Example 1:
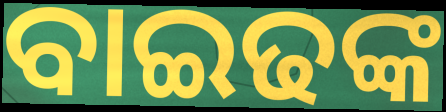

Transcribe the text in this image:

ବାଇଢଙ୍କ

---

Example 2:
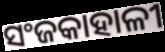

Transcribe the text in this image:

ସଂଜକାହାଳୀ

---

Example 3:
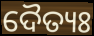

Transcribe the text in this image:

ଦୈତ୍ୟଃ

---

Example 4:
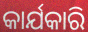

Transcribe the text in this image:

କାର୍ଯକାରି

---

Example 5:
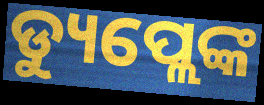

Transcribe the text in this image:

ଡ୍ୟୁପ୍ଲେଙ୍କ